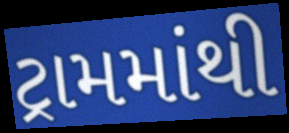
ટ્રામમાંથી